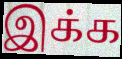
இக்க